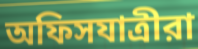
অফিসযাত্রীরা